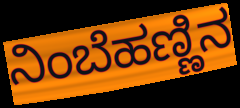
ನಿಂಬೆಹಣ್ಣಿನ